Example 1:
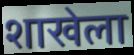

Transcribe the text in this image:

शाखेला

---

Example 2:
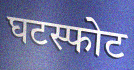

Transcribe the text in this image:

घटस्फोट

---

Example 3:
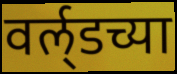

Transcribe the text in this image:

वर्ल्डच्या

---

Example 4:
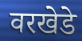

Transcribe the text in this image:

वरखेडे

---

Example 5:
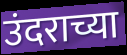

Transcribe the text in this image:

उंदराच्या